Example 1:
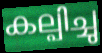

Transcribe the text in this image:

കല്പിച്ചു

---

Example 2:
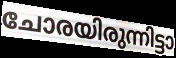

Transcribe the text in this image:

ചോരയിരുന്നിട്ടാ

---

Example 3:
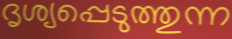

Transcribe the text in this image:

ദൃശ്യപ്പെടുത്തുന്ന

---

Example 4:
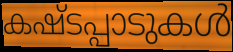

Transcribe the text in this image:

കഷ്ടപ്പാടുകൾ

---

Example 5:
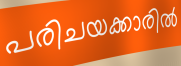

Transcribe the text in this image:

പരിചയക്കാരിൽ